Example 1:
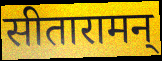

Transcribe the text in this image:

सीतारामन्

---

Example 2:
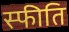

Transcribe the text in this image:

स्फीति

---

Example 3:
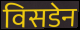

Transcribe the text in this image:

विसडेन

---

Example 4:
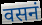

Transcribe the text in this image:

वसनं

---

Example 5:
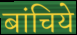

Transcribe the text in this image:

बांचिये